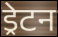
ड्रेटन